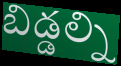
బిడ్డల్ని